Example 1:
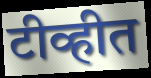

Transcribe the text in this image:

टीव्हीत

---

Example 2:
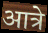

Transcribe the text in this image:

आत्रे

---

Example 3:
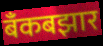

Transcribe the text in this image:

बँकबझार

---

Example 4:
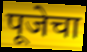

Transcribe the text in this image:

पूजेचा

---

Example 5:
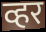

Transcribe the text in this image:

व्हर